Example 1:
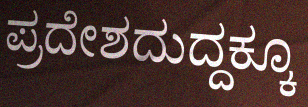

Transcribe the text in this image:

ಪ್ರದೇಶದುದ್ದಕ್ಕೂ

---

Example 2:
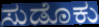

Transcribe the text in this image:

ಸುಡೊಕು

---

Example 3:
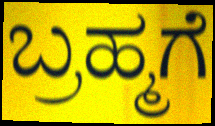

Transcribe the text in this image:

ಬ್ರಹ್ಮಗೆ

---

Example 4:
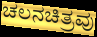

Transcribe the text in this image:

ಚಲನಚಿತ್ರವು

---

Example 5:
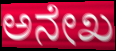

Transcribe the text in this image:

ಅನೇಖ